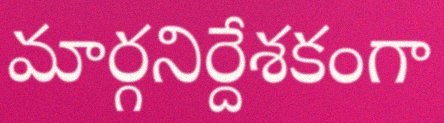
మార్గనిర్దేశకంగా